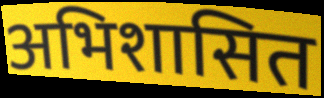
अभिशासित